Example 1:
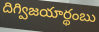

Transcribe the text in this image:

దిగ్విజయార్థంబు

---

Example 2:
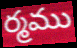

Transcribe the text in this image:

ర్మము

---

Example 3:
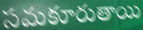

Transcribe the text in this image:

సమకూరుతాయి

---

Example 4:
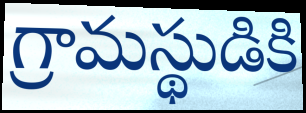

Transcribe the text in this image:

గ్రామస్థుడికి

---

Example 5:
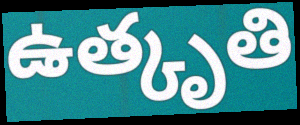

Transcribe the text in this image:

ఉత్కృతి